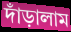
দাঁড়ালাম